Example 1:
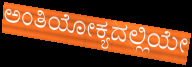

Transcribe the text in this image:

ಅಂತಿಯೋಕ್ಯದಲ್ಲಿಯೇ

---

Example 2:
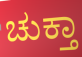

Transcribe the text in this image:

ಚುಕ್ತಾ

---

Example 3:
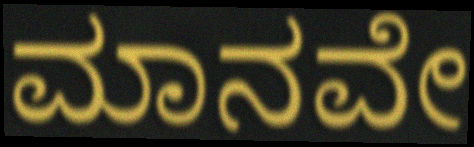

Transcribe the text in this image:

ಮಾನವೇ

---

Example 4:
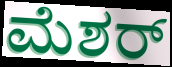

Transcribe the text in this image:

ಮೆಶರ್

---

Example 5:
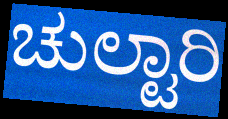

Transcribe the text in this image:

ಚುಲ್ಟಾರಿ